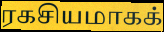
ரகசியமாகக்